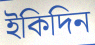
ইকিদিন